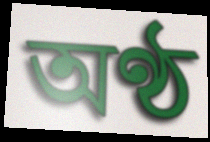
অণ্ঠ